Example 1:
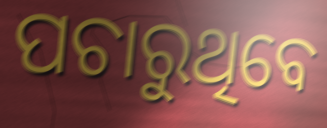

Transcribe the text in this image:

ପଚାରୁଥିବେ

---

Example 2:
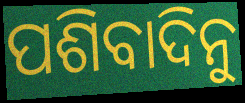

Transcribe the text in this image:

ପଶିବାଦିନୁ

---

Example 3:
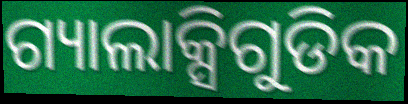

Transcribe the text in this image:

ଗ୍ୟାଲାକ୍ସିଗୁଡିକ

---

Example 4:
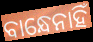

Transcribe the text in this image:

ବାନ୍ଧେନାହିଁ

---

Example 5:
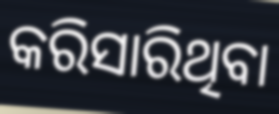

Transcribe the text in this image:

କରିସାରିଥିବା